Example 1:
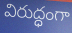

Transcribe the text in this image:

విరుద్ధంగా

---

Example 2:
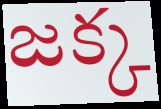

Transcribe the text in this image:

జక్క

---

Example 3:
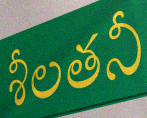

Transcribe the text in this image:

శీలతనీ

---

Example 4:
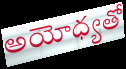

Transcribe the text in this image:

అయోధ్యతో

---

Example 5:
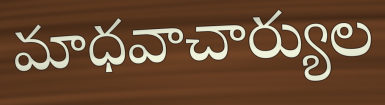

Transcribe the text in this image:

మాధవాచార్యుల